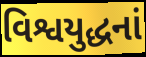
વિશ્વયુદ્ધનાં